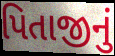
પિતાજીનું